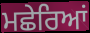
ਮਛੇਰਿਆਂ